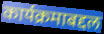
कार्यक्रमाबद्दल